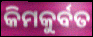
କିମକୁର୍ବତ